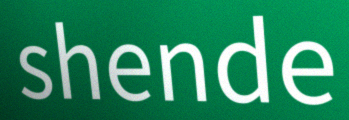
shende